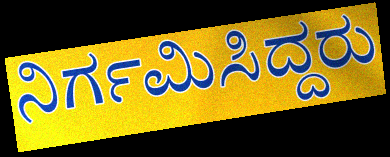
ನಿರ್ಗಮಿಸಿದ್ದರು